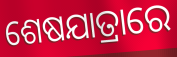
ଶେଷଯାତ୍ରାରେ